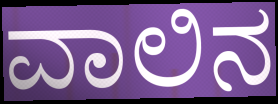
ವಾಲಿನ